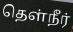
தெள்நீர்